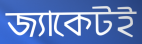
জ্যাকেটই